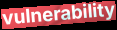
vulnerability